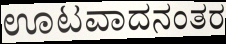
ಊಟವಾದನಂತರ